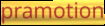
pramotion